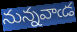
నున్నవాఁడ